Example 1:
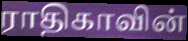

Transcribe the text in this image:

ராதிகாவின்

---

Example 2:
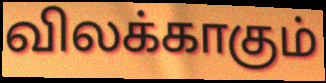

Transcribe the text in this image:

விலக்காகும்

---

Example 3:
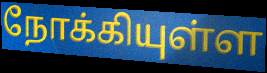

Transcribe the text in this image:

நோக்கியுள்ள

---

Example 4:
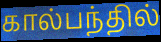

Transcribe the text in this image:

கால்பந்தில்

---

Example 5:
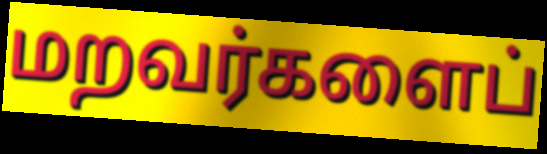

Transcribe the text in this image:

மறவர்களைப்